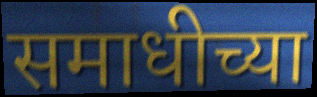
समाधीच्या